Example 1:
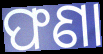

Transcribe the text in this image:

ଫଣା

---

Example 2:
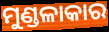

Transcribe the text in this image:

ମୁଣ୍ଡଳାକାର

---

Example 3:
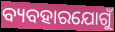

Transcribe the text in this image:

ବ୍ୟବହାରଯୋଗୁଁ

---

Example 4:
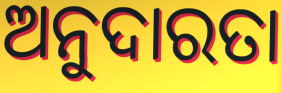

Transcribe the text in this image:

ଅନୁଦାରତା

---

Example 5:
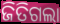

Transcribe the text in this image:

ଜିତିଗଲା